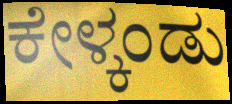
ಕೇಳ್ಕಂಡು